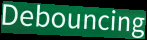
Debouncing